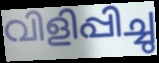
വിളിപ്പിച്ചു